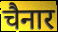
चैनार